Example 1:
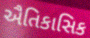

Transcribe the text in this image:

ઐતિકાસિક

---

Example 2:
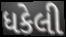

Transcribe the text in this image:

ધકેલી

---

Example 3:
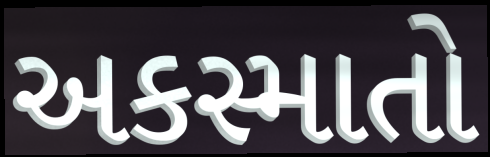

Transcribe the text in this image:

અકસ્માતો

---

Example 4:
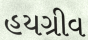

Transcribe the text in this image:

હયગ્રીવ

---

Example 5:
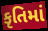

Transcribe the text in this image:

કૃતિમાં